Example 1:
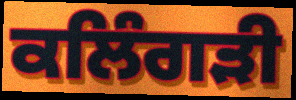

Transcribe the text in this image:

ਕਲਿੰਗੜੀ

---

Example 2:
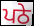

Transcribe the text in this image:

ਪਠੇ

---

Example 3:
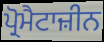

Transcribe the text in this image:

ਪ੍ਰੋਮੈਟਾਜ਼ੀਨ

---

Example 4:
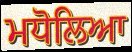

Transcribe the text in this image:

ਮਧੋਲਿਆ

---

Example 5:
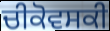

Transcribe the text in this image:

ਚੀਕੋਵਸਕੀ